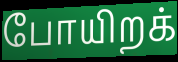
போயிறக்